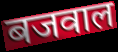
बजवाल